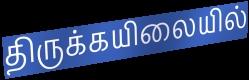
திருக்கயிலையில்